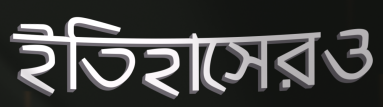
ইতিহাসেরও